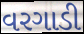
વરગાડી